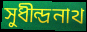
সুধীন্দ্রনাথ